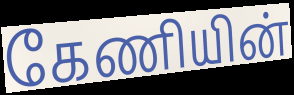
கேணியின்